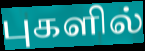
புகளில்